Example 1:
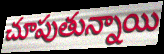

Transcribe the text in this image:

చూపుతున్నాయి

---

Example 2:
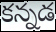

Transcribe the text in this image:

కన్నడ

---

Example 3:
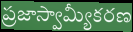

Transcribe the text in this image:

ప్రజాస్వామ్యీకరణ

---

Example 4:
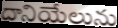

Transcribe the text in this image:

దానియేలును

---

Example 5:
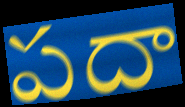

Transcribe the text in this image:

పదా